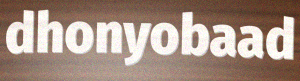
dhonyobaad